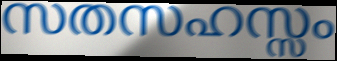
സതസഹസ്സം